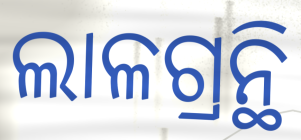
ଲାଳଗ୍ରନ୍ଥି